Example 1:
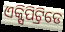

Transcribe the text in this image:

ଏକ୍ସିପିଟ୍ରିଡେ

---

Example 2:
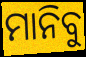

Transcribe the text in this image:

ମାନିବୁ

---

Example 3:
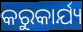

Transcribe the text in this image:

କରୁକାର୍ଯ୍ୟ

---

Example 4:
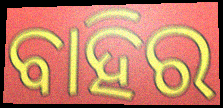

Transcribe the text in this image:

ବାହିର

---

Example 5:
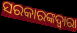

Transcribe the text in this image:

ସରକାରଙ୍କଦ୍ବାରା